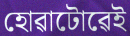
হোৱাটোৱেই